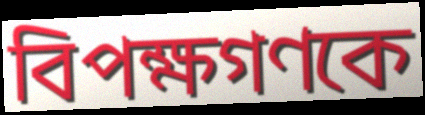
বিপক্ষগণকে